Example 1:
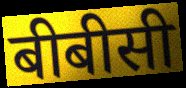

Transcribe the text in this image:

बीबीसी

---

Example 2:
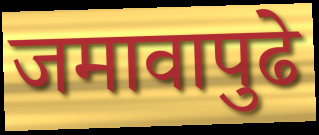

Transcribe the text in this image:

जमावापुढे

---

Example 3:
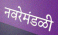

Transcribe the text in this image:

नवरेमंडळी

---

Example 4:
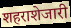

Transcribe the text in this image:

शहराशेजारी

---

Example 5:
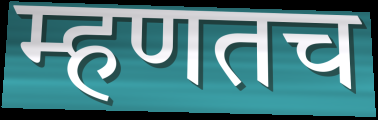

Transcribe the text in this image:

म्हणतच